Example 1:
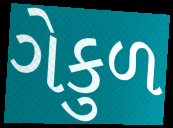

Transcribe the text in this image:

ગેકુળ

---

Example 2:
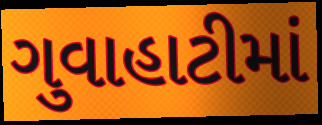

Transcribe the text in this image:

ગુવાહાટીમાં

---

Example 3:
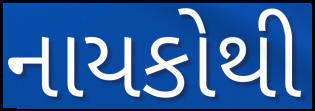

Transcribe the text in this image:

નાયકોથી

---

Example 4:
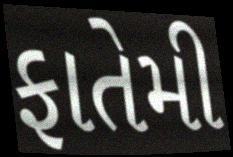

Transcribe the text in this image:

ફાતેમી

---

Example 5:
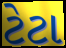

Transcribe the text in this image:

ટેટા